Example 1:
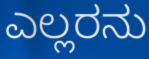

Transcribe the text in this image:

ಎಲ್ಲರನು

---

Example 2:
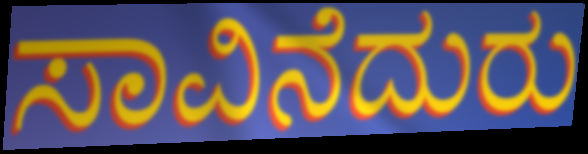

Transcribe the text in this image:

ಸಾವಿನೆದುರು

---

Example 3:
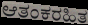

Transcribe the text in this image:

ಆತಂಕರಹಿತ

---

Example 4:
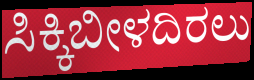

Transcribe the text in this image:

ಸಿಕ್ಕಿಬೀಳದಿರಲು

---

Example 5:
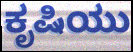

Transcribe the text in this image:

ಕೃಷಿಯು